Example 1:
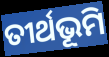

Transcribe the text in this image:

ତୀର୍ଥଭୂମି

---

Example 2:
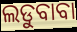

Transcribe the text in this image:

ଲଡୁବାବା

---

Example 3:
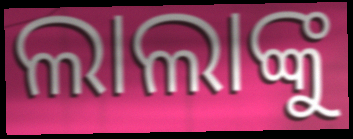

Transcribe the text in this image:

ଲାଲାଙ୍କୁ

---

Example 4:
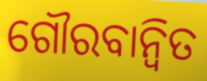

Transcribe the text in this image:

ଗୌରବାନ୍ୱିତ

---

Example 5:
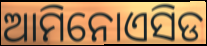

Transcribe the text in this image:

ଆମିନୋଏସିଡ